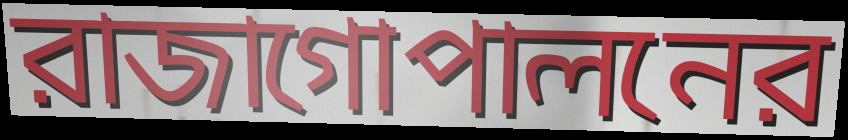
রাজাগোপালনের